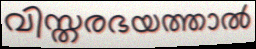
വിസ്തരഭയത്താൽ